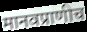
मानवप्राणीच